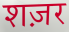
शज़र